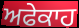
ਅਫੇਕਾਹ